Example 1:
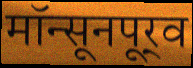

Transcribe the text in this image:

मॉन्सूनपूर्व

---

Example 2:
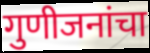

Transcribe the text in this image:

गुणीजनांचा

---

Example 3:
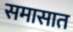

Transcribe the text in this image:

समासात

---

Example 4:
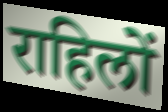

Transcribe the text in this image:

राहिलों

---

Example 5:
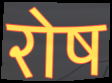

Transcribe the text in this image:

रोष